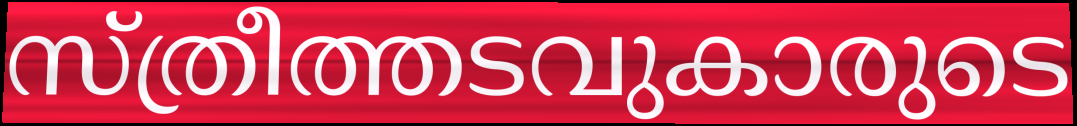
സ്ത്രീത്തടവുകാരുടെ